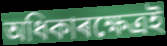
অধিকাৰক্ষেত্ৰই